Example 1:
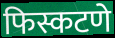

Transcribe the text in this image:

फिस्कटणे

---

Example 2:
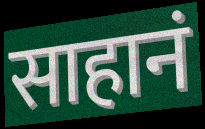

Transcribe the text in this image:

साहानं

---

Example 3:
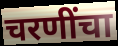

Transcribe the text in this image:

चरणींचा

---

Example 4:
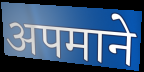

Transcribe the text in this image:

अपमाने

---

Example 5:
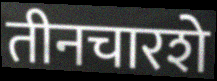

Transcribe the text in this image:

तीनचारशे